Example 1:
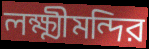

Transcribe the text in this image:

লক্ষ্মীমন্দির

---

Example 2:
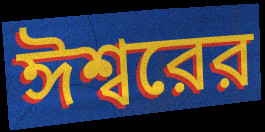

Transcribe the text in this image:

ঈশ্বরের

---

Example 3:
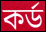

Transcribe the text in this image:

কর্ড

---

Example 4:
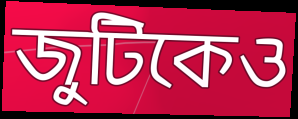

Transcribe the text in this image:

জুটিকেও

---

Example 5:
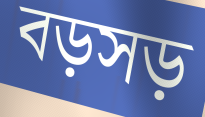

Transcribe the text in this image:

বড়সড়